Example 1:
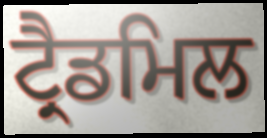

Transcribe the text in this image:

ਟ੍ਰੈਡਮਿਲ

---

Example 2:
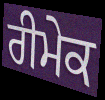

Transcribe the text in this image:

ਰੀਮੇਕ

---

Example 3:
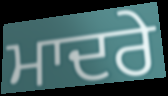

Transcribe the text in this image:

ਮਾਦਰੇ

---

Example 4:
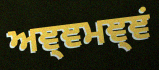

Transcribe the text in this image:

ਅਞ੍ਞਮਞ੍ਞਂ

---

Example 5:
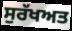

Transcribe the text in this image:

ਸੁਰੱਖਅਤ